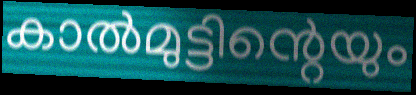
കാൽമുട്ടിന്റെയും